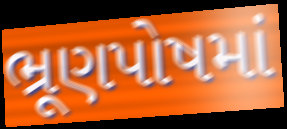
ભ્રૂણપોષમાં